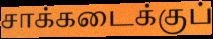
சாக்கடைக்குப்